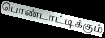
பொண்டாட்டிக்கும்